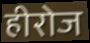
हीरोज